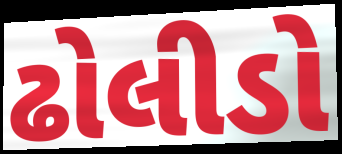
ઢોલીડો